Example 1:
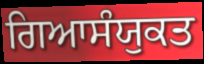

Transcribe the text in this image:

ਗਿਆਸੰਯੁਕਤ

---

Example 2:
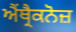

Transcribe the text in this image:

ਐਂਥ੍ਰੈਕਨੋਜ਼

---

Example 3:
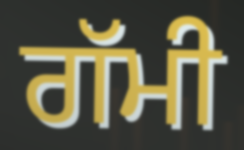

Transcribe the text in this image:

ਗੱਮੀ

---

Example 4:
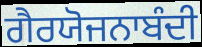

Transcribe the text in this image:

ਗੈਰਯੋਜਨਾਬੰਦੀ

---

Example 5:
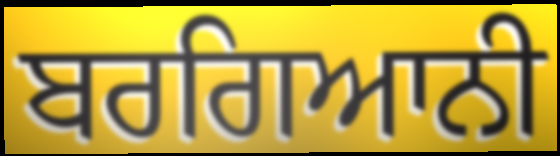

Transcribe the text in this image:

ਬਰਗਿਆਨੀ